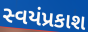
સ્વયંપ્રકાશ